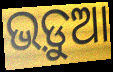
ଭଡ଼ୁଆ